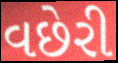
વછેરી